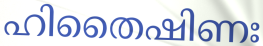
ഹിതൈഷിണഃ